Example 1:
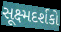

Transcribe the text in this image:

સૂક્ષ્મદર્શકો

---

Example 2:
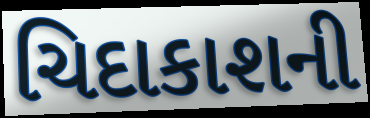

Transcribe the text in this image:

ચિદાકાશની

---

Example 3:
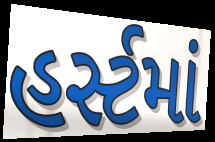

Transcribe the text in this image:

હર્સ્ટમાં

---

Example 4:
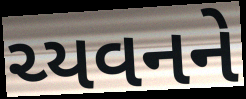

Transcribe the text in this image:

ચ્યવનને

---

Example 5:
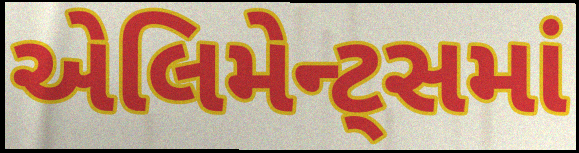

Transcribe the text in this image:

એલિમેન્ટ્સમાં